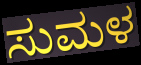
ಸುಮಳ